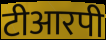
टीआरपी